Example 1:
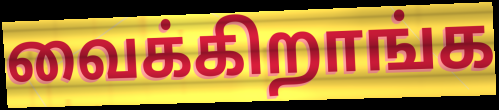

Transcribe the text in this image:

வைக்கிறாங்க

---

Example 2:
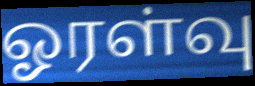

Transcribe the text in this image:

ஓரள்வு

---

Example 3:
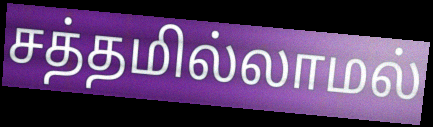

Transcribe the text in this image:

சத்தமில்லாமல்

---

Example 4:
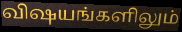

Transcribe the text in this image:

விஷயங்களிலும்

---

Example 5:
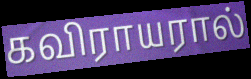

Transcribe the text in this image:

கவிராயரால்